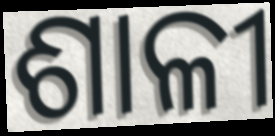
ଶାଳୀ